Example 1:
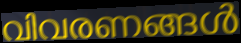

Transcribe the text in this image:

വിവരണങ്ങൾ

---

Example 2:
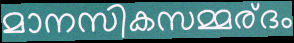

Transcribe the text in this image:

മാനസികസമ്മര്ദം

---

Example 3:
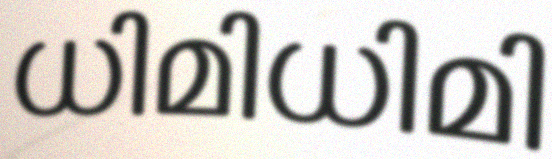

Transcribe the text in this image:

ധിമിധിമി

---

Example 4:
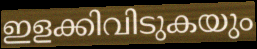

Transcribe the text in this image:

ഇളക്കിവിടുകയും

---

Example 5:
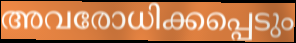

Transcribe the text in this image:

അവരോധിക്കപ്പെടും